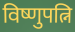
विष्णुपत्नि